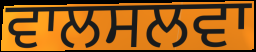
ਵਾਲਸਲਵਾ